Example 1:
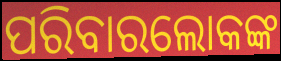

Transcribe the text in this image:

ପରିବାରଲୋକଙ୍କ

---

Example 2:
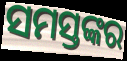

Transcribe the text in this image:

ସମସ୍ତଙ୍କର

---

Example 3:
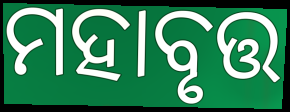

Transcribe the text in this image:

ମହାବୃତ୍ତ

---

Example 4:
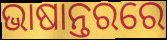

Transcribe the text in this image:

ଭାଷାନ୍ତରରେ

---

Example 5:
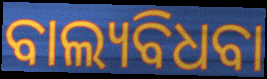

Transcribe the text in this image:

ବାଲ୍ୟବିଧବା